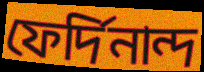
ফের্দিনান্দ